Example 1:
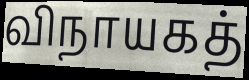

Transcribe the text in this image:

விநாயகத்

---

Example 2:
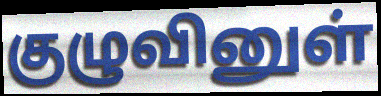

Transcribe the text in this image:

குழுவினுள்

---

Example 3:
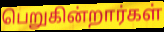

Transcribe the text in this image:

பெறுகின்றார்கள்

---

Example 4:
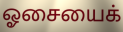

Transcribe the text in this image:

ஓசையைக்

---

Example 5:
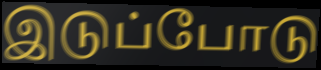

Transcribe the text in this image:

இடுப்போடு